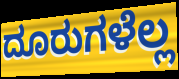
ದೂರುಗಳೆಲ್ಲ